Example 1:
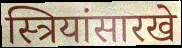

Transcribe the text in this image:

स्त्रियांसारखे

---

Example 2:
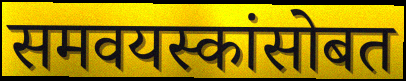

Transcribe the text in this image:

समवयस्कांसोबत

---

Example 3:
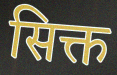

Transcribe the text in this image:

सिक्त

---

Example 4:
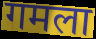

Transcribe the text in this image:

गमला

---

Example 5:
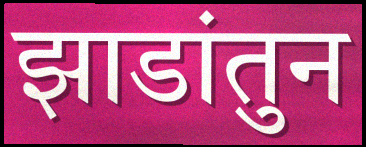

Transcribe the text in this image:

झाडांतुन